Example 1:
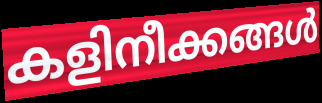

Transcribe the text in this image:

കളിനീക്കങ്ങൾ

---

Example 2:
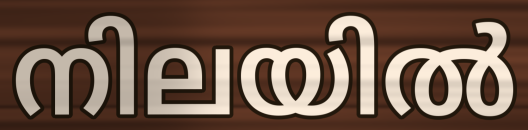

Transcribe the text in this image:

നിലയിൽ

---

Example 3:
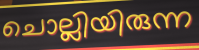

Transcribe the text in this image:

ചൊല്ലിയിരുന്ന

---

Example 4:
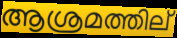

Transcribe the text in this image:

ആശ്രമത്തില്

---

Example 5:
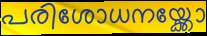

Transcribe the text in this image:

പരിശോധനയ്ക്കോ